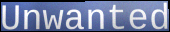
Unwanted